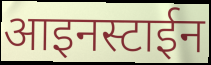
आइनस्टाईन